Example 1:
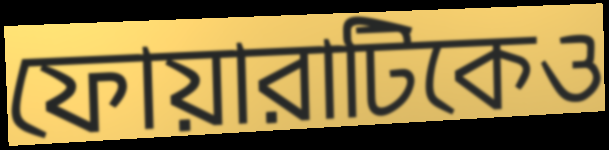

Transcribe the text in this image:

ফোয়ারাটিকেও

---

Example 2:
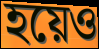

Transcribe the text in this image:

হয়েও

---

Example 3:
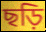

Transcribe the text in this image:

ছড়ি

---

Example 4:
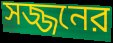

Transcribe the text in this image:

সজ্জনের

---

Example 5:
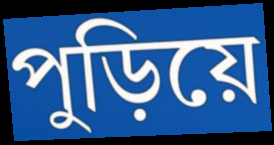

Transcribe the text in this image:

পুড়িয়ে